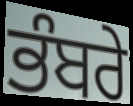
ਭੰਬਰੇ